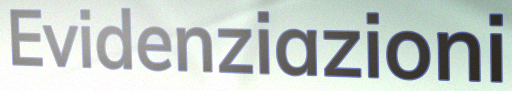
Evidenziazioni